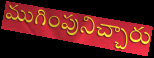
ముగింపునిచ్చారు